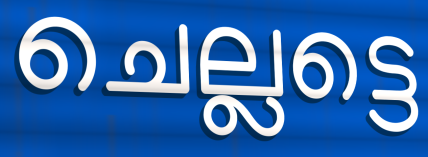
ചെല്ലട്ടെ